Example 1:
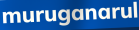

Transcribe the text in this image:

muruganarul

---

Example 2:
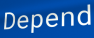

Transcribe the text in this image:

Depend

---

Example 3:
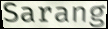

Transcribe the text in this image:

Sarang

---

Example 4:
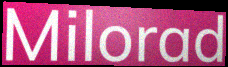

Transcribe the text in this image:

Milorad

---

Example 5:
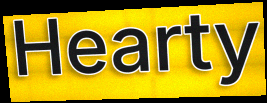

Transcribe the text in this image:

Hearty